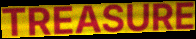
TREASURE